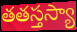
తతస్తస్యా